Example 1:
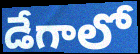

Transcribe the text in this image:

డేగాలో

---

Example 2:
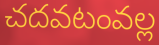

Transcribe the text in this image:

చదవటంవల్ల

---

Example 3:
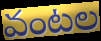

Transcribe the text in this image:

వంటల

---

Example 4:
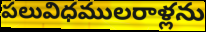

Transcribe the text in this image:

పలువిధములరాళ్లను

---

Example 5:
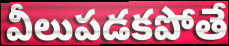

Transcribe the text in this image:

వీలుపడకపోతే